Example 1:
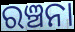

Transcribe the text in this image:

ରଞ୍ଚନା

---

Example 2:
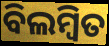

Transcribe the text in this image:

ବିଲମ୍ୱିତ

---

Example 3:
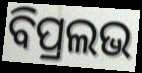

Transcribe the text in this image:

ବିପ୍ରଲଭ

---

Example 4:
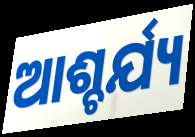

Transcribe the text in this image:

ଆଶ୍ଚର୍ଯ୍ୟ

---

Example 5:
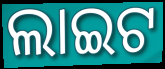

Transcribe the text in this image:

ଲାଇଟ